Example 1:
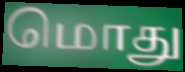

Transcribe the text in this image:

மொது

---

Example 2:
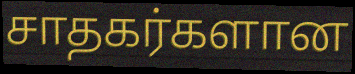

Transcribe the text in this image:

சாதகர்களான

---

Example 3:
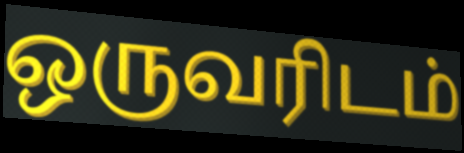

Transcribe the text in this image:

ஒருவரிடம்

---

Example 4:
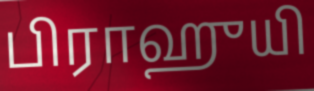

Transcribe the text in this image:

பிராஹுயி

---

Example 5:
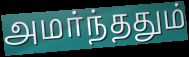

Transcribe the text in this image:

அமர்ந்ததும்